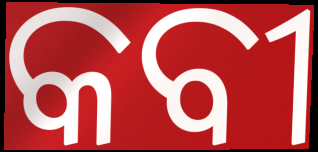
କବୀ